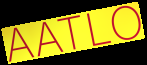
AATLO